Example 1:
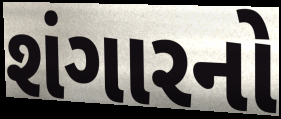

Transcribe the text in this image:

શંગારનો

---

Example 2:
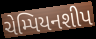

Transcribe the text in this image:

ચેમ્પિયનશીપ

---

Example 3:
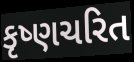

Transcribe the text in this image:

કૃષ્ણચરિત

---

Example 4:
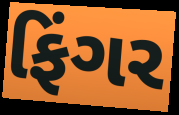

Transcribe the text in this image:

ફિંગર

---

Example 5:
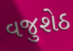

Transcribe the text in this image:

વજુશેઠ